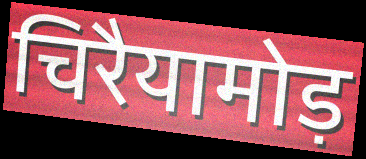
चिरैयामोड़